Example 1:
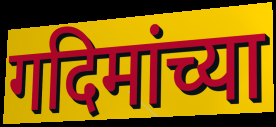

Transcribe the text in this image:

गदिमांच्या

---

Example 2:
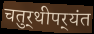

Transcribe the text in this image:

चतुर्थीपर्यंत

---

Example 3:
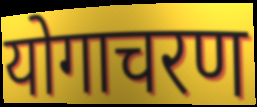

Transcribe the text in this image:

योगाचरण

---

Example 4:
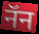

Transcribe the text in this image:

नॅन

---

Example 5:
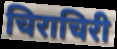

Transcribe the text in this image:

चिराचिरी